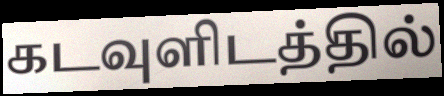
கடவுளிடத்தில்